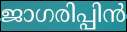
ജാഗരിപ്പിൻ